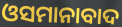
ଓସମାନାବାଦ